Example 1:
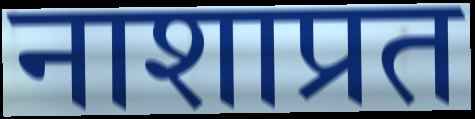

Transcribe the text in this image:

नाशाप्रत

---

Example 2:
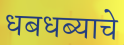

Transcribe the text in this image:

धबधब्याचे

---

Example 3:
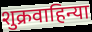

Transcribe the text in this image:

शुक्रवाहिन्या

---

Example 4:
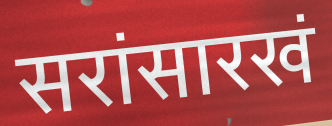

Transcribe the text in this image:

सरांसारखं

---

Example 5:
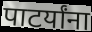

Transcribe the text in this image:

पाटर्यांना